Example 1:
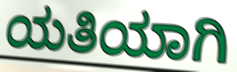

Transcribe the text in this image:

ಯತಿಯಾಗಿ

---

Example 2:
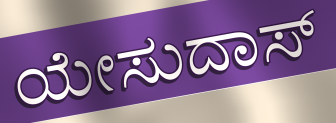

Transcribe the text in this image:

ಯೇಸುದಾಸ್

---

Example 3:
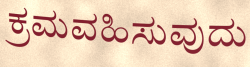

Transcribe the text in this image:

ಕ್ರಮವಹಿಸುವುದು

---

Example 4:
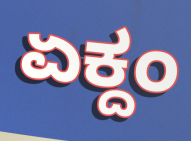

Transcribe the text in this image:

ಏಕ್ದಂ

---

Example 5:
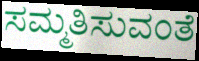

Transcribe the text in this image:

ಸಮ್ಮತಿಸುವಂತೆ